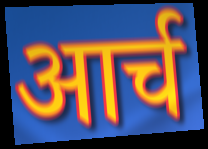
आर्च